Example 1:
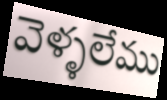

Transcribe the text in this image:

వెళ్ళలేము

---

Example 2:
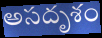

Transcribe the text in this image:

అసదృశం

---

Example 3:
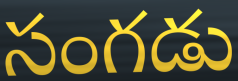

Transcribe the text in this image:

సంగడు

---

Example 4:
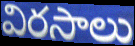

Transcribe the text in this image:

విరసాలు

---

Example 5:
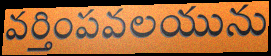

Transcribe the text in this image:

వర్తింపవలయును